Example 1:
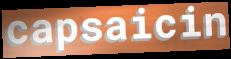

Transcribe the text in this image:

capsaicin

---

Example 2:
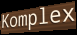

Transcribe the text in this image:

Komplex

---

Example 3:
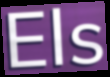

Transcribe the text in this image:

Els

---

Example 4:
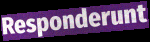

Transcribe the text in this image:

Responderunt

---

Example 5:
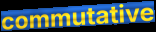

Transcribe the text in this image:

commutative